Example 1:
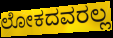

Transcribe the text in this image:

ಲೋಕದವರಲ್ಲ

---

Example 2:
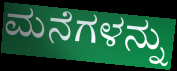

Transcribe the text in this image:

ಮನೆಗಳನ್ನು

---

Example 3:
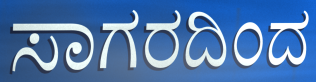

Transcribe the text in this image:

ಸಾಗರದಿಂದ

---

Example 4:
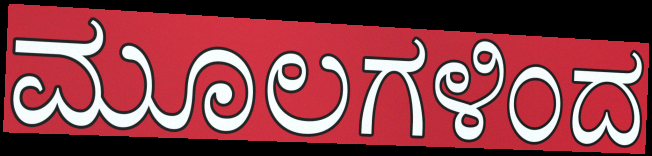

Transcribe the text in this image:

ಮೂಲಗಳಿಂದ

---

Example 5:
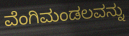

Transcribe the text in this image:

ವೆಂಗಿಮಂಡಲವನ್ನು